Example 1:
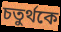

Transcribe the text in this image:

চতুর্থকে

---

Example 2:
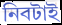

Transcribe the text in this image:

নিবটাই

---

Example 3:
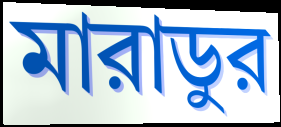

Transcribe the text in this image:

মারাডুর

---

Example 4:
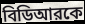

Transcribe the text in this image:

বিডিআরকে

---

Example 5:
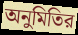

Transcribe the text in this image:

অনুমিতির